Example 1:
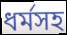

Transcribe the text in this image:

ধর্মসহ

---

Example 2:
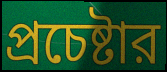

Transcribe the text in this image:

প্রচেষ্টার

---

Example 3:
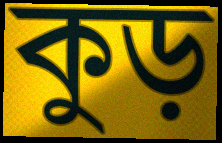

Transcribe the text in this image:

কুড়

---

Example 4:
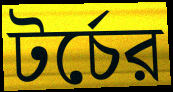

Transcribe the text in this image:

টর্চের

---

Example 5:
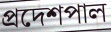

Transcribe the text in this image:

প্রদেশপাল